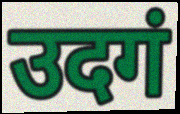
उदगं